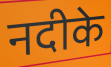
नदीके